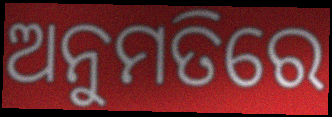
ଅନୁମତିରେ